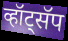
व्हॉट्सॅप